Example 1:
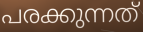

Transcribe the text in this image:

പരക്കുന്നത്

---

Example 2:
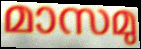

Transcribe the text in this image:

മാസമു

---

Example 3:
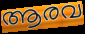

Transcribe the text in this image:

ആരവ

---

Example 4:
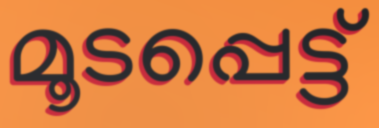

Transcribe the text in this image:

മൂടപ്പെട്ട്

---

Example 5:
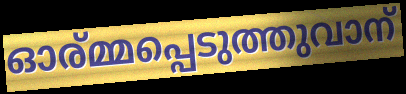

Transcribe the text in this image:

ഓര്മ്മപ്പെടുത്തുവാന്